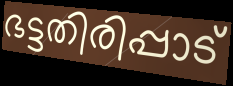
ഭട്ടതിരിപ്പാട്